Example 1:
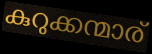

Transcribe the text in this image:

കുറുക്കന്മാര്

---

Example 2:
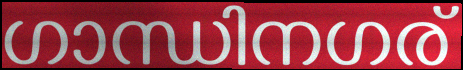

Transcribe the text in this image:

ഗാന്ധിനഗര്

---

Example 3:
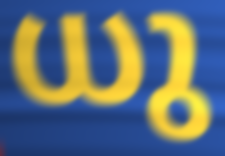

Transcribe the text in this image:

ധു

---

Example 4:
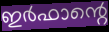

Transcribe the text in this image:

ഇർഫാന്റെ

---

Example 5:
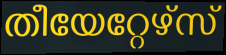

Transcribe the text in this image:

തീയേറ്റേഴ്സ്